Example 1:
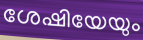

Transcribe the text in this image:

ശേഷിയേയും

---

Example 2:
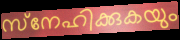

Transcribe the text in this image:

സ്‌നേഹിക്കുകയും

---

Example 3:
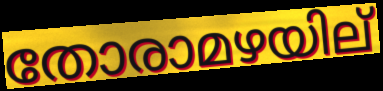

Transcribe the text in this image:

തോരാമഴയില്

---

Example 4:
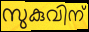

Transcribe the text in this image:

സുകുവിന്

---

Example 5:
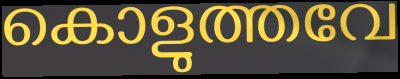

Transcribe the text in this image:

കൊളുത്തവേ